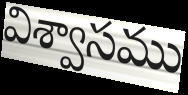
విశ్వాసము